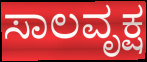
ಸಾಲವೃಕ್ಷ